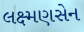
લક્ષ્મણસેન